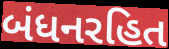
બંધનરહિત